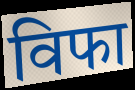
विफा